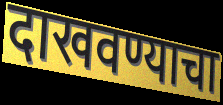
दाखवण्याचा